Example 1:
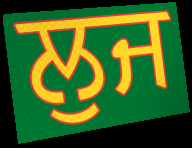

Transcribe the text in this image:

ਲੁਜ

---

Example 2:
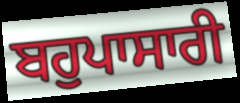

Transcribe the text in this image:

ਬਹੁਪਾਸਾਰੀ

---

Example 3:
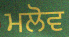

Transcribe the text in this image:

ਮਲੋਵ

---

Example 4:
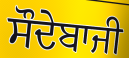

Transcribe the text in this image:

ਸੌਦੇਬਾਜੀ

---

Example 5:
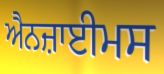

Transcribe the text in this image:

ਐਨਜ਼ਾਈਮਸ